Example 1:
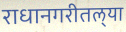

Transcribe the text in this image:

राधानगरीतल्या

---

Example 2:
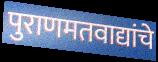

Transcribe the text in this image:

पुराणमतवाद्यांचे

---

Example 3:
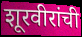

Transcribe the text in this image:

शूरवीरांची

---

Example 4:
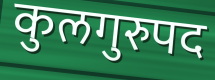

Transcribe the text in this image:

कुलगुरुपद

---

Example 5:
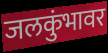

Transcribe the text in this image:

जलकुंभावर